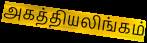
அகத்தியலிங்கம்